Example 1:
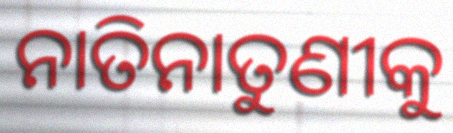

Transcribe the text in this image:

ନାତିନାତୁଣୀକୁ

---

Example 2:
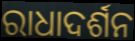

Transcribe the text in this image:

ରାଧାଦର୍ଶନ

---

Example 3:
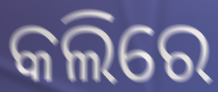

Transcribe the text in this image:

କଲିରେ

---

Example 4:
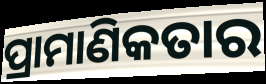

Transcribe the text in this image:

ପ୍ରାମାଣିକତାର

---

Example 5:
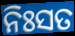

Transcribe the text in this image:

ନିଃସତ